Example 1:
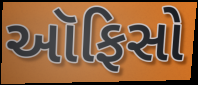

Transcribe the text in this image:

ઑફિસો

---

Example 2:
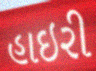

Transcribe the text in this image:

હાઇરી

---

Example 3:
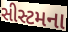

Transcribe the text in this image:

સીસ્ટમના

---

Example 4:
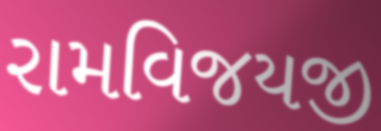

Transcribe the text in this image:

રામવિજયજી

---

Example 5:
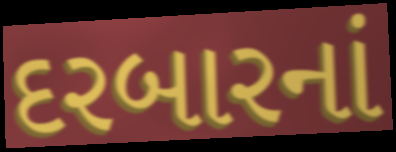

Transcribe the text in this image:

દરબારનાં